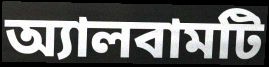
অ্যালবামটি